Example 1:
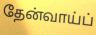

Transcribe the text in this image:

தேன்வாய்ப்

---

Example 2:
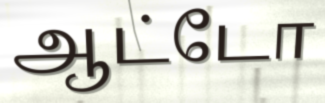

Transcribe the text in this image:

ஆட்டோ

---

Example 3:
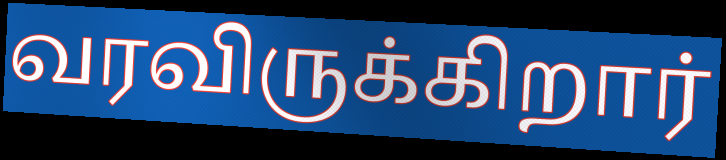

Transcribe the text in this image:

வரவிருக்கிறார்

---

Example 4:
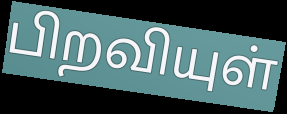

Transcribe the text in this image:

பிறவியுள்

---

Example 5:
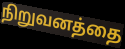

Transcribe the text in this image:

நிறுவனத்தை